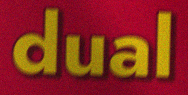
dual